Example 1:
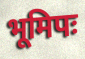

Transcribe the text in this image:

भूमिपः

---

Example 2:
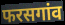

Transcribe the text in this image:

फरसगांव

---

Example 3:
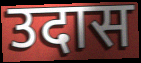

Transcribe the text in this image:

उदास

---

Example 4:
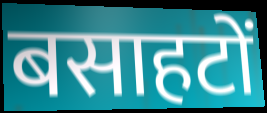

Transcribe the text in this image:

बसाहटों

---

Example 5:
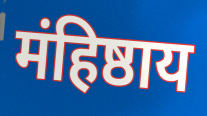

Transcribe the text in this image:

मंहिष्ठाय